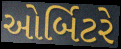
ઓર્બિટરે